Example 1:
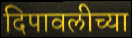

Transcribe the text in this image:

दिपावलीच्या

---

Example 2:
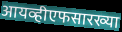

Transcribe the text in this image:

आयव्हीएफसारख्या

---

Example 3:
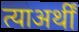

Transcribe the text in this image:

त्याअर्थीं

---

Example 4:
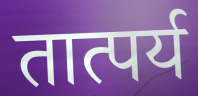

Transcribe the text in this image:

तात्पर्य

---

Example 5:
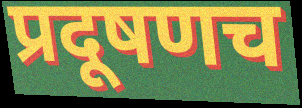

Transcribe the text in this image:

प्रदूषणच